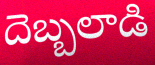
దెబ్బలాడి